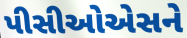
પીસીઓએસને